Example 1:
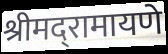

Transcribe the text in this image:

श्रीमद्‌रामायणे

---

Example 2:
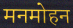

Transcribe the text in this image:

मनमोहन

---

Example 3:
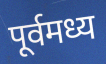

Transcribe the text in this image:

पूर्वमध्य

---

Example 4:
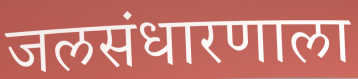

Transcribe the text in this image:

जलसंधारणाला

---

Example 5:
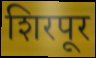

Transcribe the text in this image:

शिरपूर